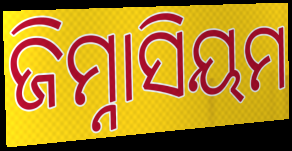
ଜିମ୍ନାସିୟମ